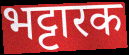
भट्टारक